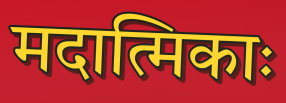
मदात्मिकाः